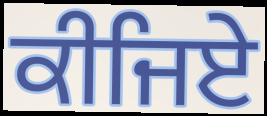
ਕੀਜਿਏ